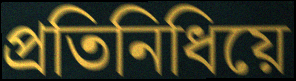
প্ৰতিনিধিয়ে